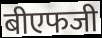
बीएफजी